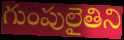
గుంపులైతిని